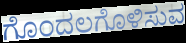
ಗೊಂದಲಗೊಳಿಸುವ